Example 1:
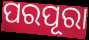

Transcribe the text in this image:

ପରପୂରା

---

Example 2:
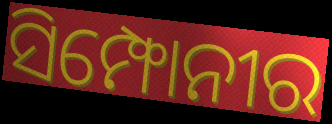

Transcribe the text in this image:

ସିମ୍ଫୋନୀର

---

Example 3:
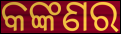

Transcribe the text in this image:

କଙ୍କଣର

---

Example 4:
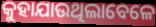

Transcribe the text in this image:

କୁହାଯାଉଥିଲାବେଳେ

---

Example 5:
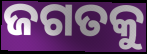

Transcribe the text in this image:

ଜଗତକୁ